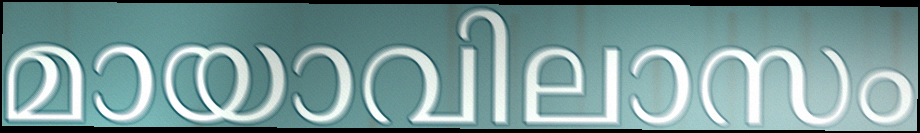
മായാവിലാസം